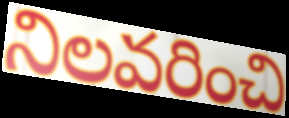
నిలవరించి